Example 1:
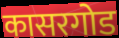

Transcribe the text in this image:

कासरगोड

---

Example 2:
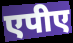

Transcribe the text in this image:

एपीए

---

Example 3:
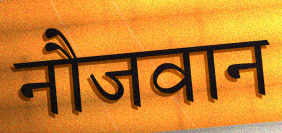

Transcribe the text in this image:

नौजवान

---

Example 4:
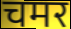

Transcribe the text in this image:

चमर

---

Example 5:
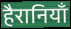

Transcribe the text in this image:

हैरानियाँ